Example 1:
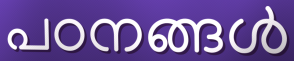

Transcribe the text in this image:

പഠനങ്ങൾ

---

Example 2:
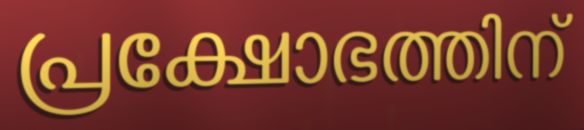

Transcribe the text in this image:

പ്രക്ഷോഭത്തിന്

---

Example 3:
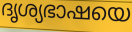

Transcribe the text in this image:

ദൃശ്യഭാഷയെ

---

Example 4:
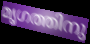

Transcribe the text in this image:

മൃഗത്തിനു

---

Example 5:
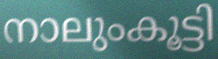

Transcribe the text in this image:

നാലുംകൂട്ടി